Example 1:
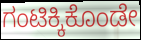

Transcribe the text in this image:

ಗಂಟಿಕ್ಕಿಕೊಂಡೇ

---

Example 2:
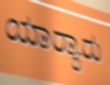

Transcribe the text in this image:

ಯಾರ್‍ಯಾರು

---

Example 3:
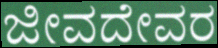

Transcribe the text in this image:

ಜೀವದೇವರ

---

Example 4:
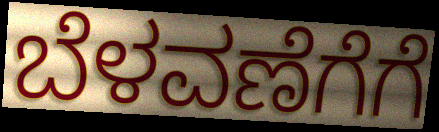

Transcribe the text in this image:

ಬೆಳವಣೆಗೆಗೆ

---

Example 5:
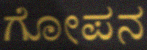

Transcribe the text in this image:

ಗೋಪನ